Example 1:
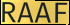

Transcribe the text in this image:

RAAF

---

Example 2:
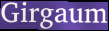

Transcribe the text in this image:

Girgaum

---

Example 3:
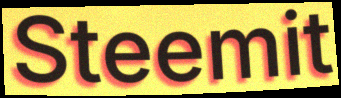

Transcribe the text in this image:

Steemit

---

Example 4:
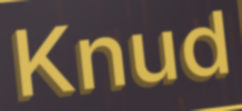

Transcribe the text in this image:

Knud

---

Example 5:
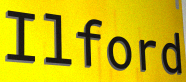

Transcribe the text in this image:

Ilford